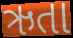
ઋતા